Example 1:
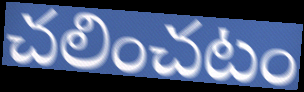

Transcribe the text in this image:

చలించటం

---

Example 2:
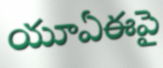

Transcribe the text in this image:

యూఏఈపై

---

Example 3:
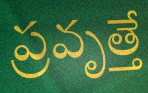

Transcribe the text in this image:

ప్రవృత్తే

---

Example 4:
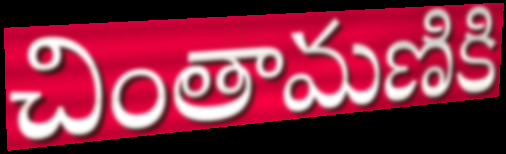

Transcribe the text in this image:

చింతామణికి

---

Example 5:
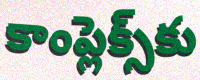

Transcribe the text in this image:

కాంప్లెక్స్‌కు